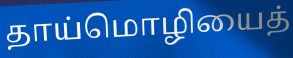
தாய்மொழியைத்